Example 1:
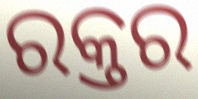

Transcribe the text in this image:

ରକ୍ତର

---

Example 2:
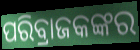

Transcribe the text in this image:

ପରିବ୍ରାଜକଙ୍କର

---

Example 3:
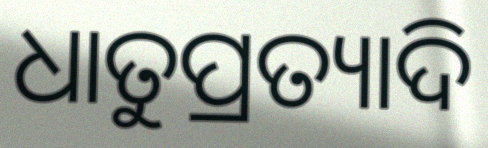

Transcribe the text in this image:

ଧାତୁପ୍ରତ୍ୟାଦି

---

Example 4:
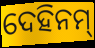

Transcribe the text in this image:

ଦେହିନମ୍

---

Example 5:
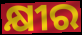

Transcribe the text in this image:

କ୍ଷୀର